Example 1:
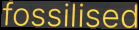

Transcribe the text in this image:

fossilised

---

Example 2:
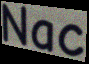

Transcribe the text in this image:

Nac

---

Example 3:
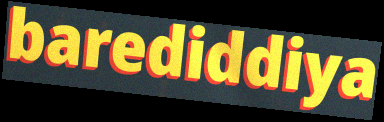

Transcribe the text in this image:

barediddiya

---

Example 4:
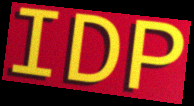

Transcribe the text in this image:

IDP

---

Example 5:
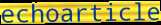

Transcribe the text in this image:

echoarticle